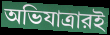
অভিযাত্রারই